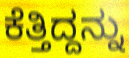
ಕೆತ್ತಿದ್ದನ್ನು